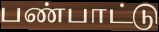
பண்பாட்டு